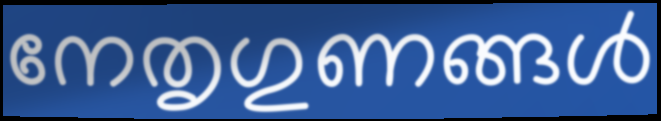
നേതൃഗുണങ്ങൾ